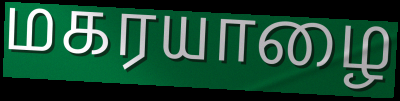
மகரயாழை